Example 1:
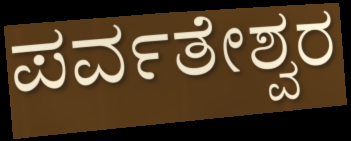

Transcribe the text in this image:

ಪರ್ವತೇಶ್ವರ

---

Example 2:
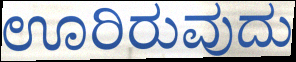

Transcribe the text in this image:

ಊರಿರುವುದು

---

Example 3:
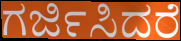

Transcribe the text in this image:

ಗರ್ಜಿಸಿದರೆ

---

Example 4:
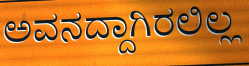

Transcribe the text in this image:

ಅವನದ್ದಾಗಿರಲಿಲ್ಲ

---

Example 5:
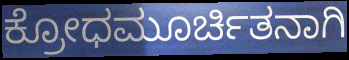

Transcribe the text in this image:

ಕ್ರೋಧಮೂರ್ಚಿತನಾಗಿ